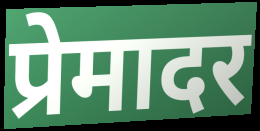
प्रेमादर